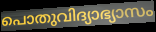
പൊതുവിദ്യാഭ്യാസം